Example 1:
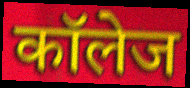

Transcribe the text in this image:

कॉलेज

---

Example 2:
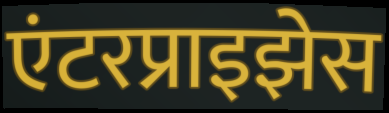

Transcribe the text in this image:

एंटरप्राइझेस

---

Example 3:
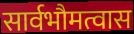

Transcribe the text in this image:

सार्वभौमत्वास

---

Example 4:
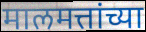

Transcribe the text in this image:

मालमत्तांच्या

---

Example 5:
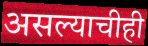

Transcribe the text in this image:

असल्याचीही